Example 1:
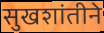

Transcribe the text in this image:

सुखशांतीने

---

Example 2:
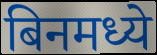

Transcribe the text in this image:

बिनमध्ये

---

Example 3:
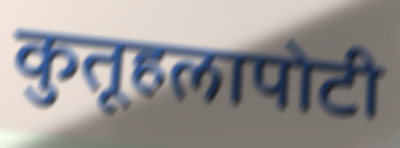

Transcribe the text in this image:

कुतूहलापोटी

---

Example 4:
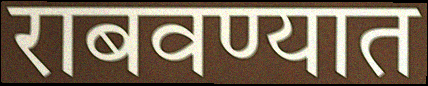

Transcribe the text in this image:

राबवण्यात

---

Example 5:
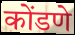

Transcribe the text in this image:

कोंडणे